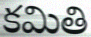
కమితి